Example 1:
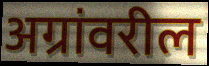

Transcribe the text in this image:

अग्रांवरील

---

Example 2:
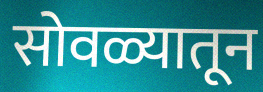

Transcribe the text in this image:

सोवळ्यातून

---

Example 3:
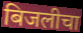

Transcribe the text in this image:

बिजलीचा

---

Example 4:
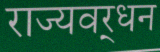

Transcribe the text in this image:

राज्यवर्धन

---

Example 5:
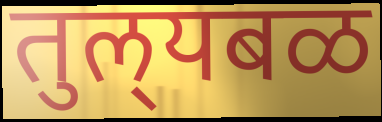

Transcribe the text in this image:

तुल्यबळ